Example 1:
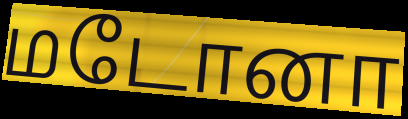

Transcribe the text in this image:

மடோனா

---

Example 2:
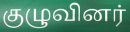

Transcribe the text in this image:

குழுவினர்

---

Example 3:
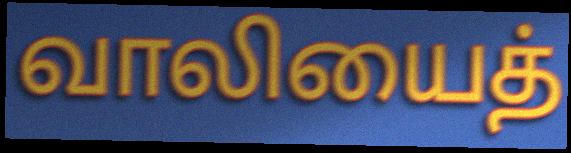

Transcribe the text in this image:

வாலியைத்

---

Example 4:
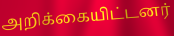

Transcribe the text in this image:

அறிக்கையிட்டனர்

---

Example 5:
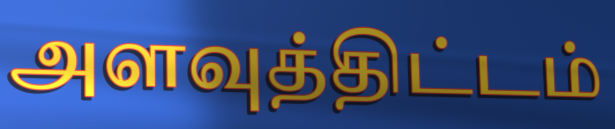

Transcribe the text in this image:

அளவுத்திட்டம்